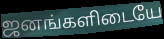
ஜனங்களிடையே